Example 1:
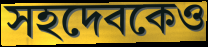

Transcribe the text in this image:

সহদেবকেও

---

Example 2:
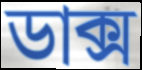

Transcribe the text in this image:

ডাক্স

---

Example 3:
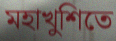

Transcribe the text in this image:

মহাখুশিতে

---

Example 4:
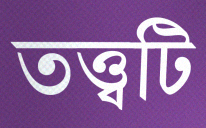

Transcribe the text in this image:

তত্ত্বটি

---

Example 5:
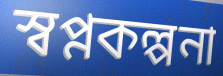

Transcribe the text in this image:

স্বপ্নকল্পনা